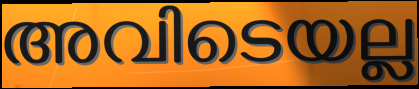
അവിടെയല്ല